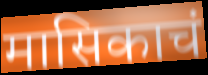
मासिकाचं